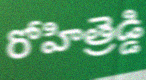
రోహిత్రెడ్డి